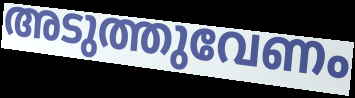
അടുത്തുവേണം